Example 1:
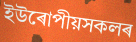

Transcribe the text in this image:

ইউৰোপীয়সকলৰ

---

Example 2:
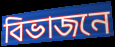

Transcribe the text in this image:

বিভাজনে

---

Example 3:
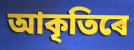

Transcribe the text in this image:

আকৃতিৰে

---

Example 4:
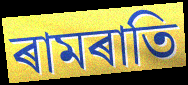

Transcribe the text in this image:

ৰামৰাতি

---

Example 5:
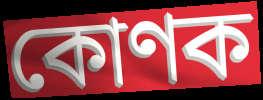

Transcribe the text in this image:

কোণক